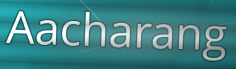
Aacharang